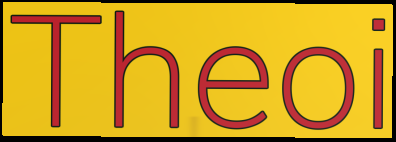
Theoi